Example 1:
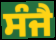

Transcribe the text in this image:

ਸੰਜੈ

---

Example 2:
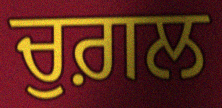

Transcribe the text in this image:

ਚੁਗ਼ਲ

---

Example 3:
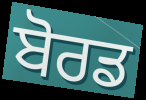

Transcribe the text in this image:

ਬੋਰਡ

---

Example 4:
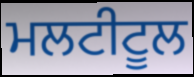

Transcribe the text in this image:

ਮਲਟੀਟੂਲ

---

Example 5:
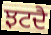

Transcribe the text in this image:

ਝਟਦੈ